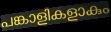
പങ്കാളികളാകും